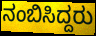
ನಂಬಿಸಿದ್ದರು